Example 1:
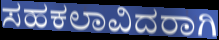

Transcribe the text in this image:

ಸಹಕಲಾವಿದರಾಗಿ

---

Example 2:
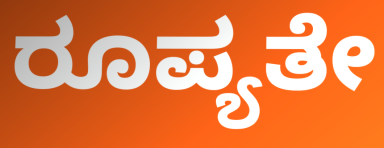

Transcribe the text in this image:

ರೂಪ್ಯತೇ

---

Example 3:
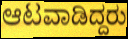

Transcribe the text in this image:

ಆಟವಾಡಿದ್ದರು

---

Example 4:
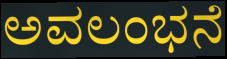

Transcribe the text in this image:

ಅವಲಂಭನೆ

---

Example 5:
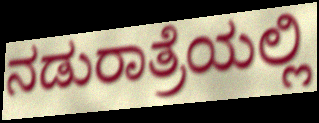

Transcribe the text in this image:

ನಡುರಾತ್ರೆಯಲ್ಲಿ